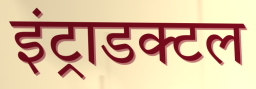
इंट्राडक्टल